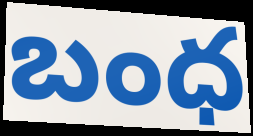
బంధ